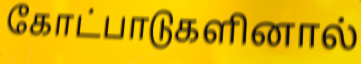
கோட்பாடுகளினால்